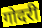
गोदरी